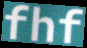
fhf